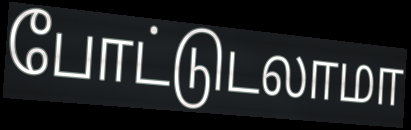
போட்டுடலாமா